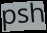
psh